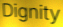
Dignity